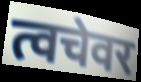
त्वचेवर